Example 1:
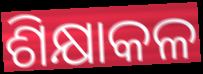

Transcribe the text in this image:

ଶିକ୍ଷାକଳ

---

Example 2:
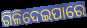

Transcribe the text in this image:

ଗିଳିଦେଇପାରେ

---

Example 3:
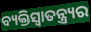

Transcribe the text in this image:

ବ୍ୟକ୍ତିସ୍ୱାତନ୍ତ୍ର୍ୟର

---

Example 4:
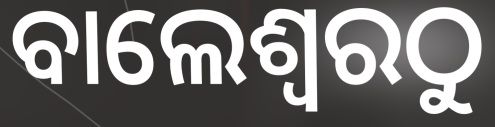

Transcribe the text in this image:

ବାଲେଶ୍ୱରଠୁ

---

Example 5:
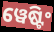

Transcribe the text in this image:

ୱେଷ୍ଟିଂ